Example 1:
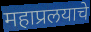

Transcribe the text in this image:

महाप्रलयाचे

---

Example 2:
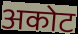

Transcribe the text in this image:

अकोट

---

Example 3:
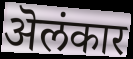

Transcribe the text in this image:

ऄलंकार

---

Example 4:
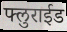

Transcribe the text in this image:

फ्लुराईड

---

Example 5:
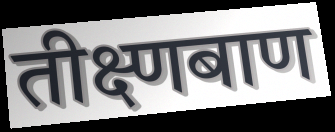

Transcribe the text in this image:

तीक्ष्णबाण